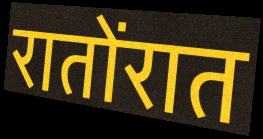
रातोंरात